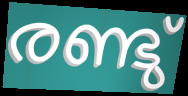
രണ്ടു്